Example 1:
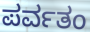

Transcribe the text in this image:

ಪರ್ವತಂ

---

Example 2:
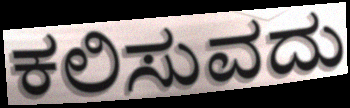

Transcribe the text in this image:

ಕಲಿಸುವದು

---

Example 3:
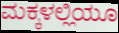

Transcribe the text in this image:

ಮಕ್ಕಳಲ್ಲಿಯೂ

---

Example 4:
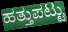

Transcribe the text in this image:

ಹತ್ತುಪಟ್ಟು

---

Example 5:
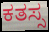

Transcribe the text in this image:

ಕತಸ್ಸ